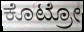
ಕೊಟ್ರೋ